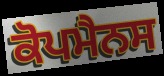
ਕੋਪਮੈਨਸ